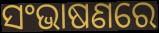
ସଂଭାଷଣରେ